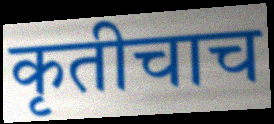
कृतीचाच